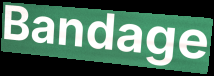
Bandage